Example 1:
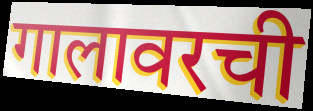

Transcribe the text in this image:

गालावरची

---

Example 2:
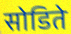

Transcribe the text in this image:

सोडिते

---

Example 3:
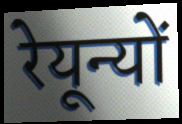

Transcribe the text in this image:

रेयून्यों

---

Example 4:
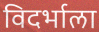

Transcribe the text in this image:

विदर्भाला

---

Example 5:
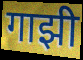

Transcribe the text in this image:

गाझी